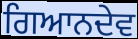
ਗਿਆਨਦੇਵ